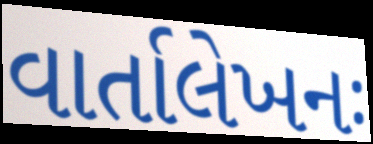
વાર્તાલેખનઃ